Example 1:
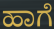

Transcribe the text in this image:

ಹಾಗೆ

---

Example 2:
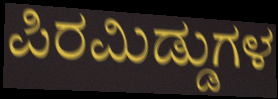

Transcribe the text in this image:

ಪಿರಮಿಡ್ಡುಗಳ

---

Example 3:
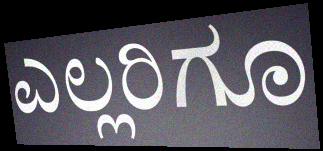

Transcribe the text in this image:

ಎಲ್ಲರಿಗೂ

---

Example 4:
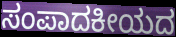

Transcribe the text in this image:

ಸಂಪಾದಕೀಯದ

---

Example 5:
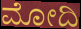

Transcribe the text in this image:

ಮೋದಿ